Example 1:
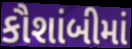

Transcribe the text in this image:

કૌશાંબીમાં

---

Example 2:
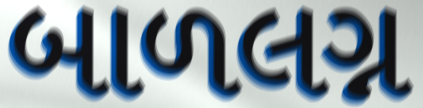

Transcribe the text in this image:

બાળલગ્ન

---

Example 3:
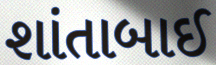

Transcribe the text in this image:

શાંતાબાઈ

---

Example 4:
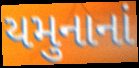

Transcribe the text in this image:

યમુનાનાં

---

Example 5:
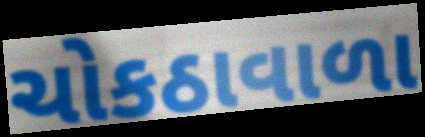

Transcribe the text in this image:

ચોકઠાવાળા